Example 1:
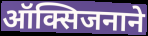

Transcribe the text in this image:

ऑक्सिजनाने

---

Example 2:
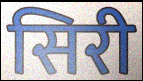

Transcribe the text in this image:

सिरी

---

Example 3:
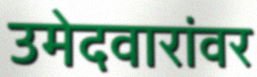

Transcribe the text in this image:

उमेदवारांवर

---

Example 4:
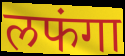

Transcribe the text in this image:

लफंगा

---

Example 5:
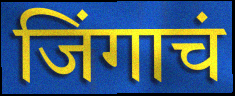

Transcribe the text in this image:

जिंगाचं